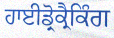
ਹਾਈਡ੍ਰੋਕ੍ਰੈਕਿੰਗ